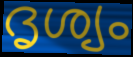
ദൃശ്യം